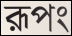
রূপং